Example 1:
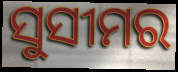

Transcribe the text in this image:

ସୁସୀମର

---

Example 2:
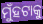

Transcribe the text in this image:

ମୁଁହଟାକୁ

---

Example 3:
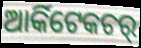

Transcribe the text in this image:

ଆର୍କିଟେକଚର୍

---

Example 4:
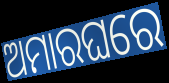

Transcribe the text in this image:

ଅମାରଘରେ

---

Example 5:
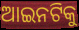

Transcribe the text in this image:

ଆଇନଟିକୁ